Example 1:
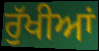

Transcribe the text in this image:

ਰੁੱਖੀਆਂ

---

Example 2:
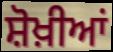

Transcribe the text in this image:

ਸ਼ੋਖ਼ੀਆਂ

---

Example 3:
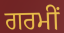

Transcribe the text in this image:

ਗਰਮੀਂ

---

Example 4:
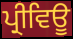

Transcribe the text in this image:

ਪ੍ਰੀਵਿਊ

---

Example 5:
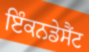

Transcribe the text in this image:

ਇੰਕਨਡੇਸੈਂਟ